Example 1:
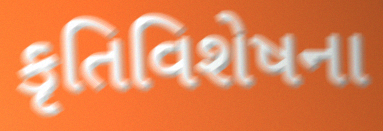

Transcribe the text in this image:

કૃતિવિશેષના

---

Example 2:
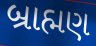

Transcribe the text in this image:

બ્રાહ્મણ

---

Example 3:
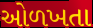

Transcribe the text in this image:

ઓળખતા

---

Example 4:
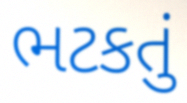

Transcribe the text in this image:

ભટકતું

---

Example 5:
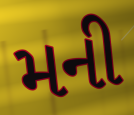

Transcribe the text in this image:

મની